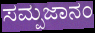
ಸಮ್ಪಜಾನಂ